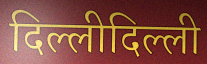
दिल्लीदिल्ली